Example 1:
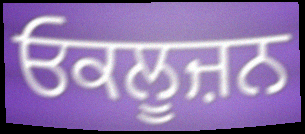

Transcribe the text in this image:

ਓਕਲੂਜ਼ਨ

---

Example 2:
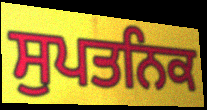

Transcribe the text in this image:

ਸੁਪਤਨਿਕ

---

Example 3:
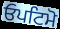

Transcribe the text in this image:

ਓਪਟਿਮੋ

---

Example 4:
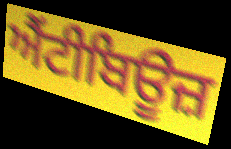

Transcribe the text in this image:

ਐਂਟੀਬਿਊਜ਼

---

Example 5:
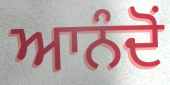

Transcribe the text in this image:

ਆਨੰਦੋਂ